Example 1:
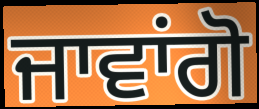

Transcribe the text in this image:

ਜਾਵਾਂਗੋ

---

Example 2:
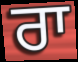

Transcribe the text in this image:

ਰਾ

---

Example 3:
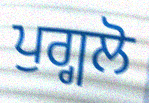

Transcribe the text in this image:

ਪੁਗ੍ਗਲੋ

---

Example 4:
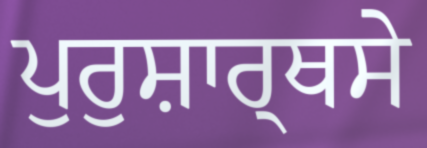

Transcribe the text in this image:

ਪੁਰੁਸ਼ਾਰ੍ਥਸੇ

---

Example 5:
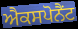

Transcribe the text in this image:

ਐਕਸਪੋਨੈਂਟ